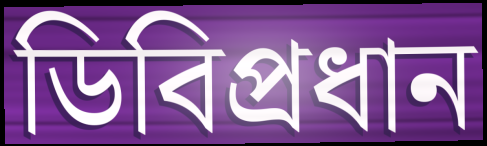
ডিবিপ্রধান